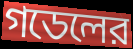
গডেলের